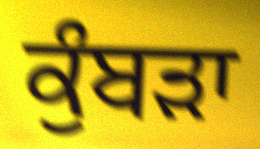
ਕੁੰਬੜਾ